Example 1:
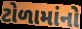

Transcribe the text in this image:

ટોળામાંનો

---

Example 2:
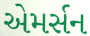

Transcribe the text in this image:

એમર્સન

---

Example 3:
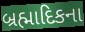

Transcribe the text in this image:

બ્રહ્માદિકના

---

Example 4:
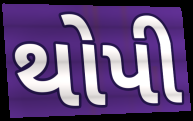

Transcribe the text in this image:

થોપી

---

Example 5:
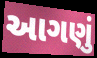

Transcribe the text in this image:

આગણું